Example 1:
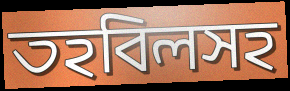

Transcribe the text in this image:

তহবিলসহ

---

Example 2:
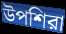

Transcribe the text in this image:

উপশিরা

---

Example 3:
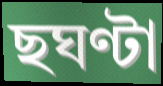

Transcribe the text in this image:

ছঘণ্টা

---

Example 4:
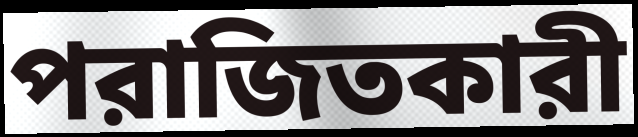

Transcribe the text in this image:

পরাজিতকারী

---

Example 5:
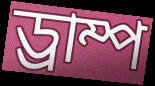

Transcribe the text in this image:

ড্রাম্প